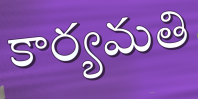
కార్యమతి